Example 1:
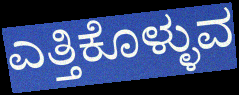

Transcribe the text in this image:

ಎತ್ತಿಕೊಳ್ಳುವ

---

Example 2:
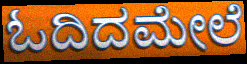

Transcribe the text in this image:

ಓದಿದಮೇಲೆ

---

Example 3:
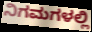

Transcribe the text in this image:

ನಿಗಮಗಳಲ್ಲಿ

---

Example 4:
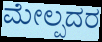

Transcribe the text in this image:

ಮೇಲ್ಪದರ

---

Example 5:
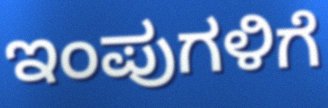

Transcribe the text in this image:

ಇಂಪುಗಳಿಗೆ